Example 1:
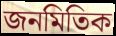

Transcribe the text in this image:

জনমিতিক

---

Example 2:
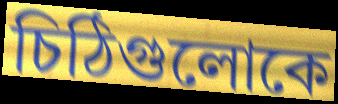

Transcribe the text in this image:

চিঠিগুলোকে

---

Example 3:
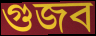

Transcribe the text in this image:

গুজব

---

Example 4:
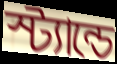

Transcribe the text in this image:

স্ট্যান্ডে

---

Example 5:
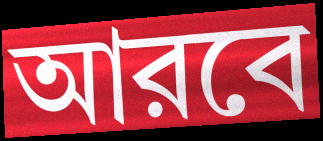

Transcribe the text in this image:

আরবে